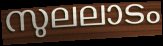
സുലലാടം